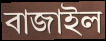
বাজাইল